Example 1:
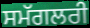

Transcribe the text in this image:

ਸਮੱਗਲਰੀ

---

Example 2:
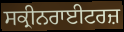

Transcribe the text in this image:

ਸਕ੍ਰੀਨਰਾਈਟਰਜ਼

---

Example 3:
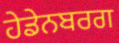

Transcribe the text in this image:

ਹੇਡੇਨਬਰਗ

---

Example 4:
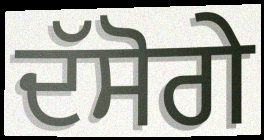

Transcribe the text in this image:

ਦੱਸੋਗੇ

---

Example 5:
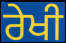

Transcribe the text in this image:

ਰੇਖੀ